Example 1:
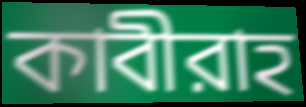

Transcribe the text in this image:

কাবীরাহ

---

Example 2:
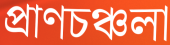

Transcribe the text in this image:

প্রাণচঞ্চলা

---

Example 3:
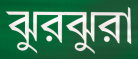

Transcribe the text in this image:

ঝুরঝুরা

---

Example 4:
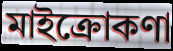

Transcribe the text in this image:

মাইক্রোকণা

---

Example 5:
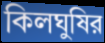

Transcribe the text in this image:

কিলঘুষির